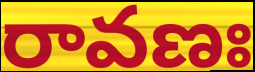
రావణః